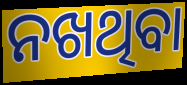
ନଖଥିବା